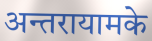
अन्तरायामके